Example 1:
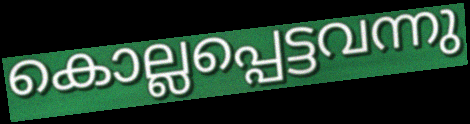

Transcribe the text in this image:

കൊല്ലപ്പെട്ടവന്നു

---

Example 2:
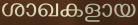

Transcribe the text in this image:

ശാഖകളായ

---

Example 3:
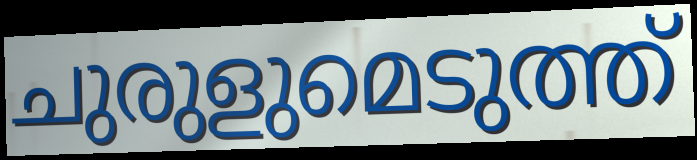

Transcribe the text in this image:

ചുരുളുമെടുത്ത്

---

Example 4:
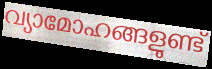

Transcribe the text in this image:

വ്യാമോഹങ്ങളുണ്ട്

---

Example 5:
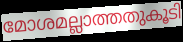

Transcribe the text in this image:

മോശമല്ലാത്തതുകൂടി